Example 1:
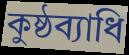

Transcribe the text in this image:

কুষ্ঠব্যাধি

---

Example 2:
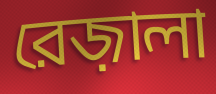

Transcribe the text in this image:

রেজ়ালা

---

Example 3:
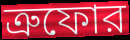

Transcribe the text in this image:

ত্রুফোর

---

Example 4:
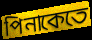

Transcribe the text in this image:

পিনাকেতে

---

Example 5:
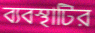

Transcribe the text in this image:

ব্যবস্থাটির